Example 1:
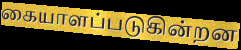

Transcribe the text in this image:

கையாளப்படுகின்றன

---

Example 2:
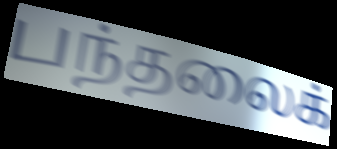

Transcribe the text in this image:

பந்தலைக்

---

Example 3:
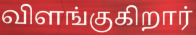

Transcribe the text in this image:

விளங்குகிறார்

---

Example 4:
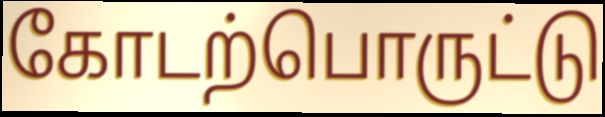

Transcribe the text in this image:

கோடற்பொருட்டு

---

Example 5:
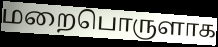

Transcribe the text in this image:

மறைபொருளாக